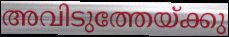
അവിടുത്തേയ്ക്കു